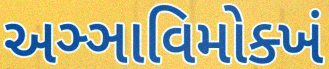
અઞ્ઞાવિમોક્ખં